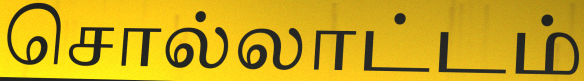
சொல்லாட்டம்